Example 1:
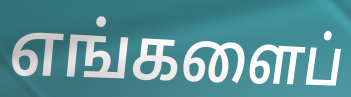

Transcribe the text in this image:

எங்களைப்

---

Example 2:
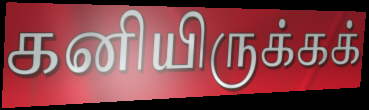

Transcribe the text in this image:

கனியிருக்கக்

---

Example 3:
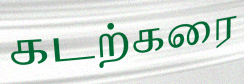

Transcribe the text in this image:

கடற்கரை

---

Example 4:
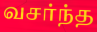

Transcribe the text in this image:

வசர்ந்த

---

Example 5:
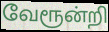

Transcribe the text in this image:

வேரூன்றி